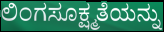
ಲಿಂಗಸೂಕ್ಷ್ಮತೆಯನ್ನು